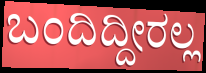
ಬಂದಿದ್ದೀರಲ್ಲ